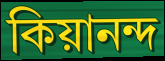
কিয়ানন্দ